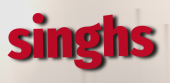
singhs